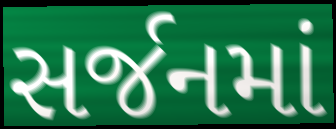
સર્જનમાં